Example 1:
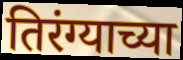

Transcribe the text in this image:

तिरंग्याच्या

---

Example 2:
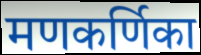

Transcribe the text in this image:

मणकर्णिका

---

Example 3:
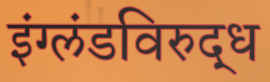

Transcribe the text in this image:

इंग्लंडविरुद्ध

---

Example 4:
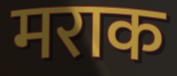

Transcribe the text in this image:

मराक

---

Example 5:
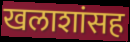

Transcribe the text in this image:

खलाशांसह